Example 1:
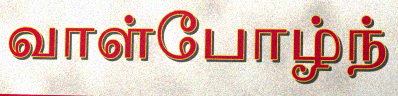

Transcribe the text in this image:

வாள்போழ்ந்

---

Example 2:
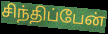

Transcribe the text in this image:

சிந்திப்பேன்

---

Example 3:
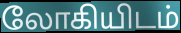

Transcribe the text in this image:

லோகியிடம்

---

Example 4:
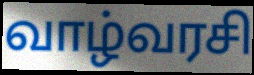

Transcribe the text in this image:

வாழ்வரசி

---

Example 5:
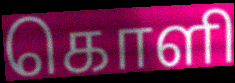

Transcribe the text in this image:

கொளி